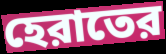
হেরাতের